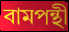
বামপন্থী